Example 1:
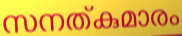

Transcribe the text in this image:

സനത്കുമാരം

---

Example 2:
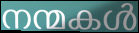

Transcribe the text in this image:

നന്മകൾ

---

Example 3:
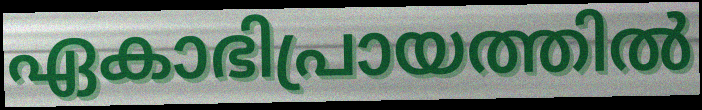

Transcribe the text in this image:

ഏകാഭിപ്രായത്തിൽ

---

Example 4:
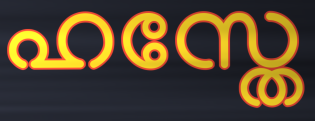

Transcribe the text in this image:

ഹസ്തേ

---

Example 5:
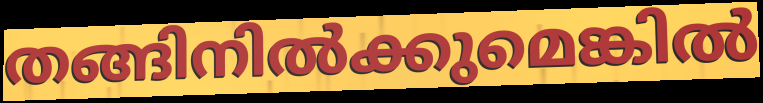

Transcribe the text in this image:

തങ്ങിനിൽക്കുമെങ്കിൽ